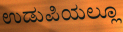
ಉಡುಪಿಯಲ್ಲೂ